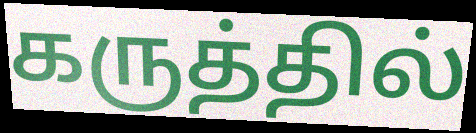
கருத்தில்